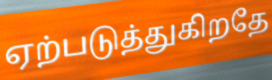
ஏற்படுத்துகிறதே